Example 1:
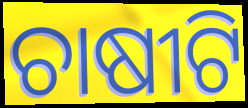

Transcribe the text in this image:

ଚାଷୀଟି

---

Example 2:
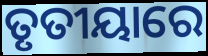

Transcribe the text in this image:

ତୃତୀୟାରେ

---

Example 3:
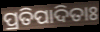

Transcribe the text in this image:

ପ୍ରତିପାଦିତାଃ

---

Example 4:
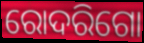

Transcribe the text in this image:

ରୋଦରିଗୋ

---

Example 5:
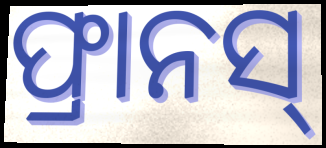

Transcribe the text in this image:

ଫ୍ରାନସ୍